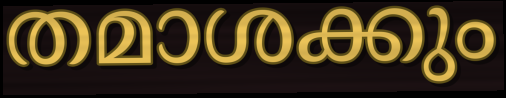
തമാശക്കും